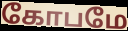
கோபமே